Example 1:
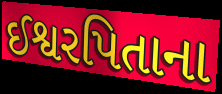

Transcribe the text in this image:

ઈશ્વરપિતાના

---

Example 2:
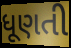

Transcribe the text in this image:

ધૂણતી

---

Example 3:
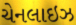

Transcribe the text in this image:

ચેનલાઇઝ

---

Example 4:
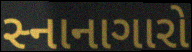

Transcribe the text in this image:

સ્નાનાગારો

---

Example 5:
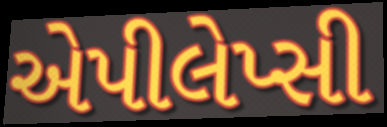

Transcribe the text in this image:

એપીલેપ્સી